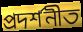
প্ৰদৰ্শনীত